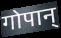
गोपान्